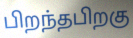
பிறந்தபிறகு